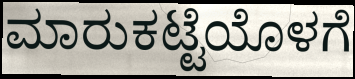
ಮಾರುಕಟ್ಟೆಯೊಳಗೆ